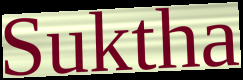
Suktha